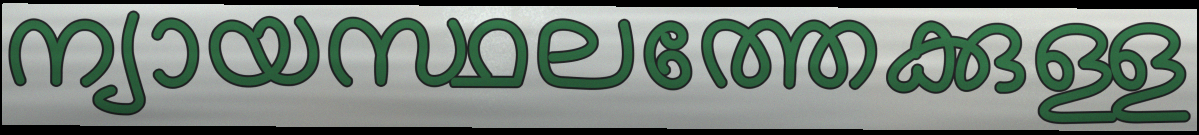
ന്യായസ്ഥലത്തേക്കുള്ള